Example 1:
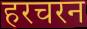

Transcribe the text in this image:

हरचरन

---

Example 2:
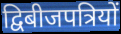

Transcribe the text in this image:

द्विबीजपत्रियों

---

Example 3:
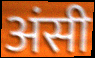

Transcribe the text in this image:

अंसी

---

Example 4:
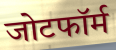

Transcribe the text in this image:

जोटफॉर्म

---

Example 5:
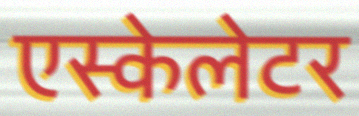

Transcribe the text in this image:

एस्केलेटर